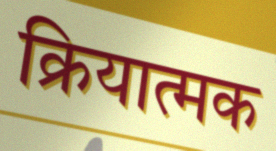
क्रियात्‍मक